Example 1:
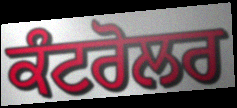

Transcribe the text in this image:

ਕੰਟਰੋਲਰ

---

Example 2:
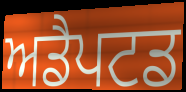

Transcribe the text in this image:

ਅਡੈਪਟਡ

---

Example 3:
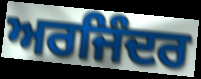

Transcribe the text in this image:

ਅਰਜਿੰਦਰ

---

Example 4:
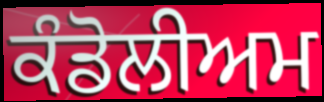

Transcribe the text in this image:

ਕੰਡੋਲੀਅਮ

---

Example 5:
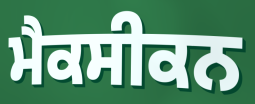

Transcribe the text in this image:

ਮੈਕਸੀਕਨ